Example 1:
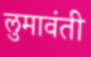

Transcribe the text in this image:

लुमावंती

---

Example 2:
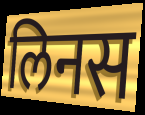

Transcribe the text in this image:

लिनस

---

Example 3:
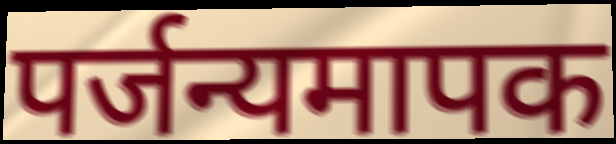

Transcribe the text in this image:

पर्जन्यमापक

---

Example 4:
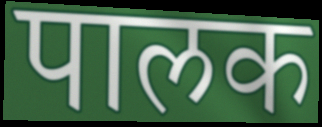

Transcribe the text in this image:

पालक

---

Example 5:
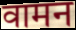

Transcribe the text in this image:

वामन